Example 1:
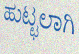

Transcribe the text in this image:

ಹುಟ್ಟಲಾಗಿ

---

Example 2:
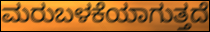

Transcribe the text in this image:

ಮರುಬಳಕೆಯಾಗುತ್ತದೆ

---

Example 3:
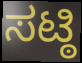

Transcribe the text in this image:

ಸಟ್ಠಿ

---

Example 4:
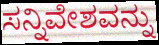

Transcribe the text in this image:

ಸನ್ನಿವೇಶವನ್ನು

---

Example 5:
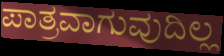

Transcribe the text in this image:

ಪಾತ್ರವಾಗುವುದಿಲ್ಲ